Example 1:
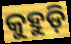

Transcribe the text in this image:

କୁହୁଡ଼ି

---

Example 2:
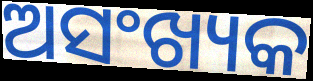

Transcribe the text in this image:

ଅସଂଖ୍ୟକ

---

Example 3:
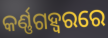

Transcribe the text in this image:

କର୍ଣ୍ଣଗହ୍ଵରରେ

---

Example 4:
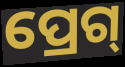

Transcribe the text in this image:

ପ୍ରେଗ୍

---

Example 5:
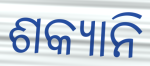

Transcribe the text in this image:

ଶକ୍ୟାନି